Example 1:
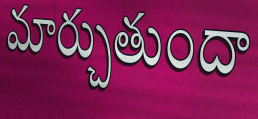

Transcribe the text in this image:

మార్చుతుందా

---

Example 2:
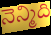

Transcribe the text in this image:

నెన్మిది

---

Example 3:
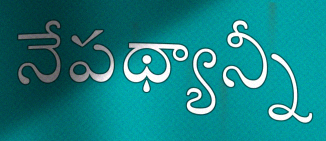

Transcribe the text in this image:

నేపథ్యాన్నీ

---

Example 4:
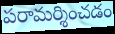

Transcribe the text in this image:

పరామర్శించడం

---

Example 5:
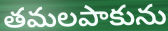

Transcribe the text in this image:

తమలపాకును